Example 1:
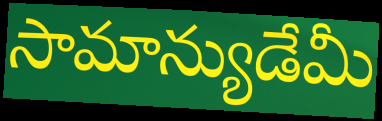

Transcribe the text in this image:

సామాన్యుడేమీ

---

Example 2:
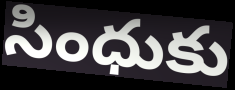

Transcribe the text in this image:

సింధుకు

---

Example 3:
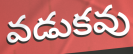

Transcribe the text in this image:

వడుకవు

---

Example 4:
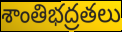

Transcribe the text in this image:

శాంతిభద్రతలు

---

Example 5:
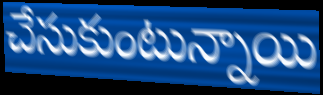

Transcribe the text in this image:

చేసుకుంటున్నాయి